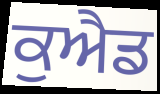
ਕੁਐਡ